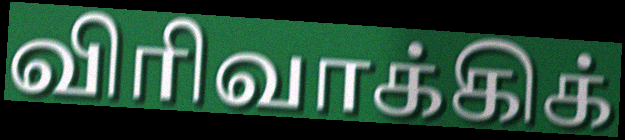
விரிவாக்கிக்